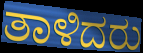
ತಾಳಿದರು